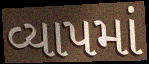
વ્યાપમાં